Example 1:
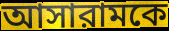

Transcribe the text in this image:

আসারামকে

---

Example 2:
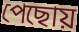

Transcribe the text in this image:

পেছোয়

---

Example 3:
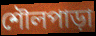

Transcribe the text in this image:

শৌলপাড়া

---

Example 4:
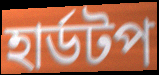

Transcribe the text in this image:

হার্ডটপ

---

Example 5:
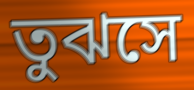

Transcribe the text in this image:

তুঝসে